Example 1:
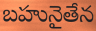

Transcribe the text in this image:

బహునైతేన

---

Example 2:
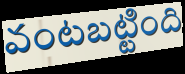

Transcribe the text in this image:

వంటబట్టింది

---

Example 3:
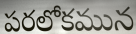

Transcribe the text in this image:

పరలోకమున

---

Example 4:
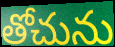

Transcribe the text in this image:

తోచును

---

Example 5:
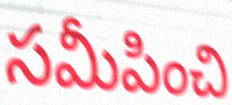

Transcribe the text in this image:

సమీపించి